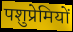
पशुप्रेमियों